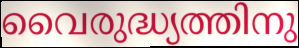
വൈരുദ്ധ്യത്തിനു